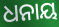
ଧନାୟ